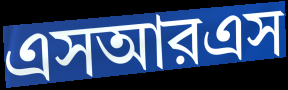
এসআরএস